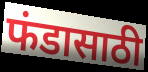
फंडासाठी